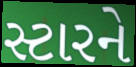
સ્ટારને